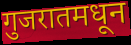
गुजरातमधून